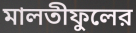
মালতীফুলের